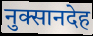
नुक्सानदेह